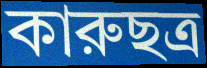
কারুছত্র